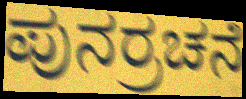
ಪುನರ್ರಚನೆ